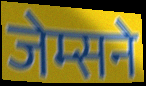
जेम्सने